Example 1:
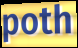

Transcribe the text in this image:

poth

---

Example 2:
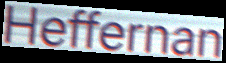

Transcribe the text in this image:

Heffernan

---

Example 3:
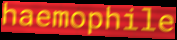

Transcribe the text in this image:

haemophile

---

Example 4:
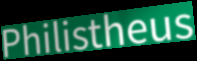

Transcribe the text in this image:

Philistheus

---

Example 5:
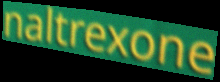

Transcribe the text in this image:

naltrexone